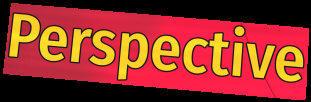
Perspective